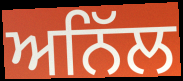
ਅਨਿੱਲ